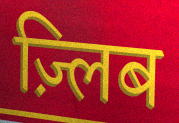
ज़्लिब